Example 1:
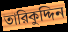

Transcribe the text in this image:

তারিকুদ্দিন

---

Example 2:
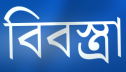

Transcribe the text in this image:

বিবস্ত্রা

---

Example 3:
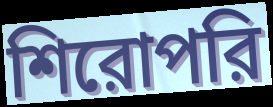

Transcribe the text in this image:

শিরোপরি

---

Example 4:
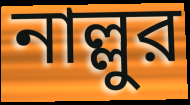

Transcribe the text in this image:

নাল্লুর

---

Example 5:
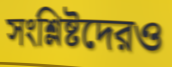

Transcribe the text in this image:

সংশ্লিষ্টদেরও